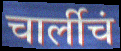
चार्लीचं